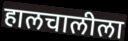
हालचालीला